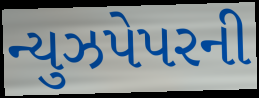
ન્યુઝપેપરની